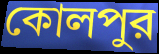
কোলপুর